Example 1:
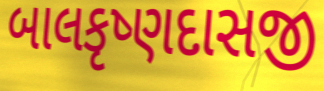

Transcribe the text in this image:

બાલકૃષ્ણદાસજી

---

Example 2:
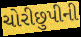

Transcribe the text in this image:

ચોરીછુપીની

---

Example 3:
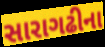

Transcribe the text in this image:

સારાગઢીના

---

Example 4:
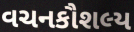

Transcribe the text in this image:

વચનકૌશલ્ય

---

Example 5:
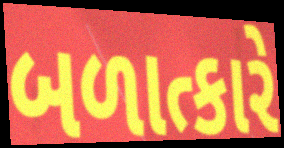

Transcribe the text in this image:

બળાત્કારે